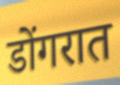
डोंगरात